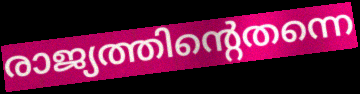
രാജ്യത്തിന്റെതന്നെ